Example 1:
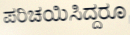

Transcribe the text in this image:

ಪರಿಚಯಿಸಿದ್ದರೂ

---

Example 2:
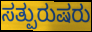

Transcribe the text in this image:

ಸತ್ಪುರುಷರು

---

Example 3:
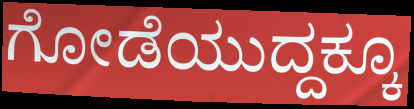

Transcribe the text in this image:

ಗೋಡೆಯುದ್ದಕ್ಕೂ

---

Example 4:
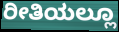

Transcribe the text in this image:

ರೀತಿಯಲ್ಲೂ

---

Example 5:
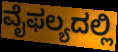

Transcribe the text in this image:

ವೈಫಲ್ಯದಲ್ಲಿ